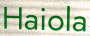
Haiola